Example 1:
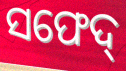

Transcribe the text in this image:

ସଫେଦ୍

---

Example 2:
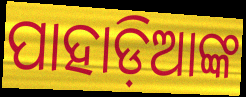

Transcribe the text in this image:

ପାହାଡ଼ିଆଙ୍କ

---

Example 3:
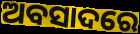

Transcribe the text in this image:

ଅବସାଦରେ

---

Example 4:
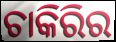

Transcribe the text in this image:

ଚାକିରିର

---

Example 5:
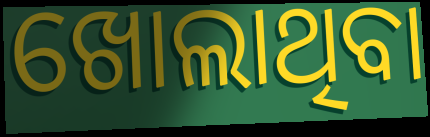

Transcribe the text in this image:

ଖୋଲାଥିବା